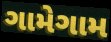
ગામેગામ